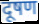
दूषण